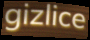
gizlice